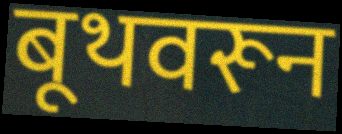
बूथवरून